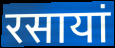
रसायां